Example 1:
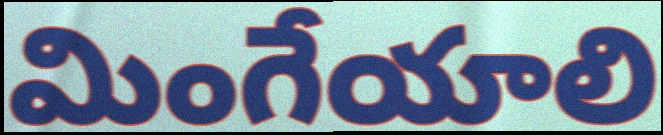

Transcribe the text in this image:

మింగేయాలి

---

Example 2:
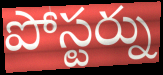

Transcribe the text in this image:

పోస్టర్ను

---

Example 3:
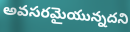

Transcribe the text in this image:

అవసరమైయున్నదని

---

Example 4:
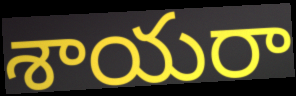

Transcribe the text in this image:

శాయరా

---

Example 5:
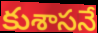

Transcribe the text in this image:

కుశాసనే